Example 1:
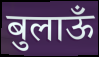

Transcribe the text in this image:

बुलाऊँ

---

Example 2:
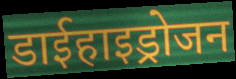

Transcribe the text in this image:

डाईहाइड्रोजन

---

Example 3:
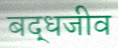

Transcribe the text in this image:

बद्धजीव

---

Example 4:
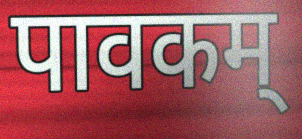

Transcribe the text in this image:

पावकम्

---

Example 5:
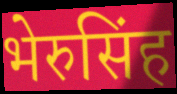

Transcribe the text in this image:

भेरुसिंह